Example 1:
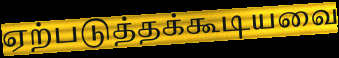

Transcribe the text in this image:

ஏற்படுத்தக்கூடியவை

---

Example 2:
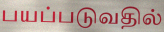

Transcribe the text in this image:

பயப்படுவதில்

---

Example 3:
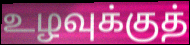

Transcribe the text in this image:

உழவுக்குத்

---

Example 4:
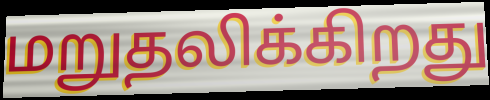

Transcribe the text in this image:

மறுதலிக்கிறது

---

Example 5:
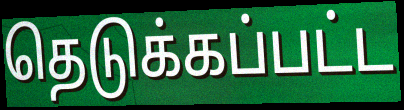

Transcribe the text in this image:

தெடுக்கப்பட்ட